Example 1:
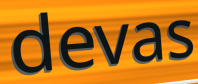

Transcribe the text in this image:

devas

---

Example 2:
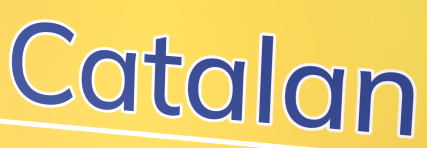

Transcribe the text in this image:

Catalan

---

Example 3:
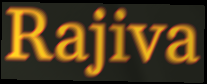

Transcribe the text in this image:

Rajiva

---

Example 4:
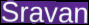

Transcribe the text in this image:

Sravan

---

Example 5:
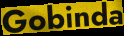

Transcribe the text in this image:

Gobinda